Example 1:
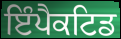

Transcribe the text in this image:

ਇੰਪੈਕਟਿਡ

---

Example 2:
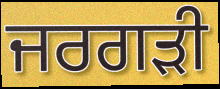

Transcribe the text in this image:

ਜਰਗੜੀ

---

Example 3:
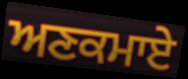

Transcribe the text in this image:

ਅਣਕਮਾਏ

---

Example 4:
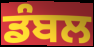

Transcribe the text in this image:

ਡੰਬਲ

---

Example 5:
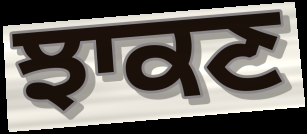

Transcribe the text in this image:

ਝਾਕਣ